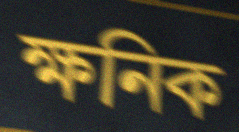
ক্ষনিক